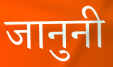
जानुनी